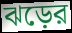
ঝড়ের